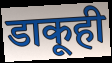
डाकूही